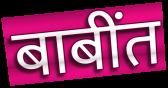
बाबींत